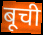
बूची